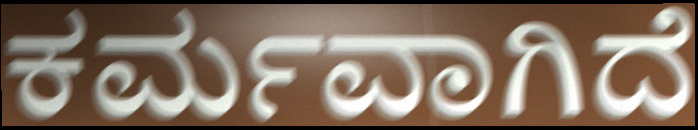
ಕರ್ಮವಾಗಿದೆ